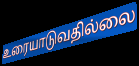
உரையாடுவதில்லை